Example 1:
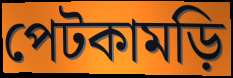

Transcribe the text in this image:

পেটকামড়ি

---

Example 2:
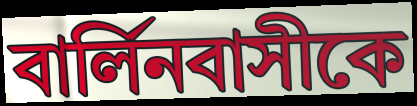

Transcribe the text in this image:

বার্লিনবাসীকে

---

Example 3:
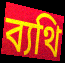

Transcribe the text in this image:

ব্যথি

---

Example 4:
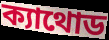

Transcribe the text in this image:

ক্যাথোড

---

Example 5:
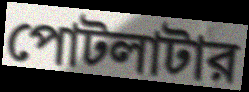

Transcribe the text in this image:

পোটলাটার